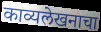
काव्यलेखनाचा